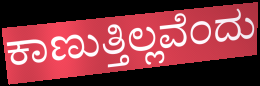
ಕಾಣುತ್ತಿಲ್ಲವೆಂದು